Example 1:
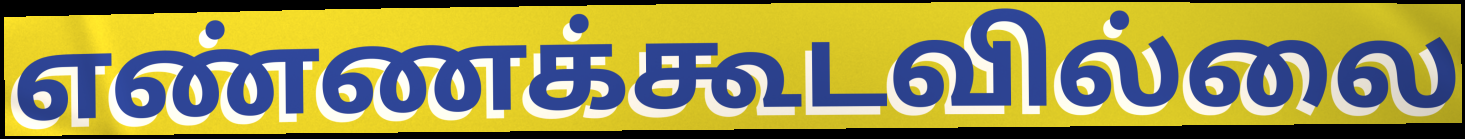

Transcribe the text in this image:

எண்ணக்கூடவில்லை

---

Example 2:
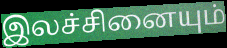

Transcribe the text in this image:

இலச்சினையும்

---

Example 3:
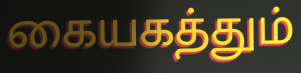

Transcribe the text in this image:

கையகத்தும்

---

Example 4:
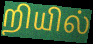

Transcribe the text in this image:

றியில்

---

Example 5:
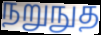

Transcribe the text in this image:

நறுநுத